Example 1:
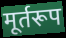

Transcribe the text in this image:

मूर्तरूप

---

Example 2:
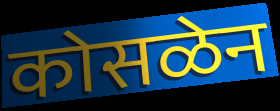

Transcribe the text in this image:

कोसळेन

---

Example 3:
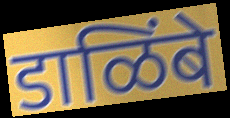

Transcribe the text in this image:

डाळिंबे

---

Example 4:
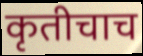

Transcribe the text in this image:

कृतीचाच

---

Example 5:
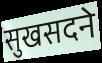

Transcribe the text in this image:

सुखसदने